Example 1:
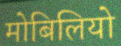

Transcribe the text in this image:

मोबिलियो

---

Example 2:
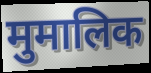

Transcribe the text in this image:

मुमालिक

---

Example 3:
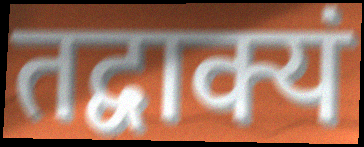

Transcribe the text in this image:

तद्वाक्यं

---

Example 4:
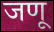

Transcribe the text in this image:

जणू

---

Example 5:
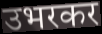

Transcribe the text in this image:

उभरकर